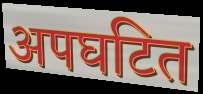
अपघटित